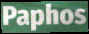
Paphos